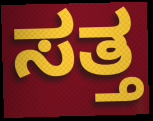
ಸತ್ತ